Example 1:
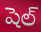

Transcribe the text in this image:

షెల్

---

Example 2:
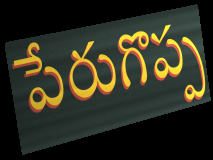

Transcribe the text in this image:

పేరుగొప్ప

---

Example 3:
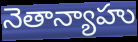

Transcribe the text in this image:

నెతాన్యాహు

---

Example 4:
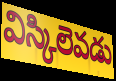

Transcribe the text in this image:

విస్కిలెవడు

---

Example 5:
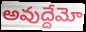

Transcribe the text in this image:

అవుద్దేమో